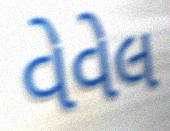
વેવેલ